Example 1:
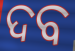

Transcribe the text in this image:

ଦବ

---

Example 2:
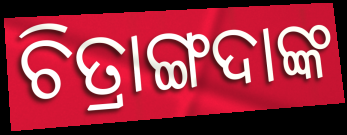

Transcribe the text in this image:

ଚିତ୍ରାଙ୍ଗଦାଙ୍କ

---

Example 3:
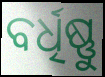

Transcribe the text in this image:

ବର୍ଧିଷ୍ଣୁ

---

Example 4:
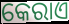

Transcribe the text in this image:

କେରାଏ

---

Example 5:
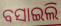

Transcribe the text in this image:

ବସାଇଲି